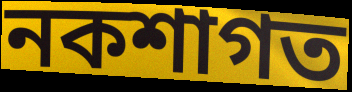
নকশাগত